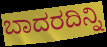
ಬಾದರದಿನ್ನಿ